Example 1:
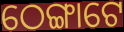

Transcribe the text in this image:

ଠେଙ୍ଗାଟେ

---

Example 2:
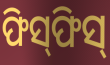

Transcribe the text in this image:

ଫିସ୍‍ଫିସ୍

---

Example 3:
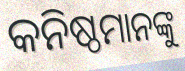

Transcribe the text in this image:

କନିଷ୍ଠମାନଙ୍କୁ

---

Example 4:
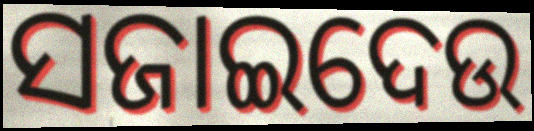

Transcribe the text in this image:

ସଜାଇଦେଉ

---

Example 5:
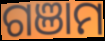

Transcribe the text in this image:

ଗଞାମ